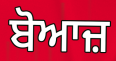
ਬੋਆਜ਼